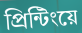
প্রিন্টিংয়ে